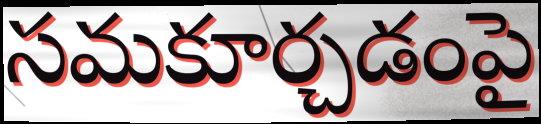
సమకూర్చడంపై